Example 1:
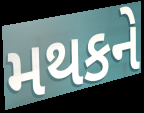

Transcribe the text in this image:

મથકને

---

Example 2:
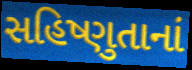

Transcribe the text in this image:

સહિષ્ણુતાનાં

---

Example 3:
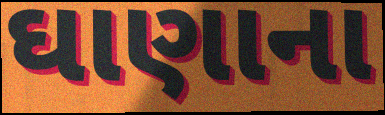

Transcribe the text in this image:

ઘાણાના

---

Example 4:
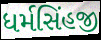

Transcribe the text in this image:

ધર્મસિંહજી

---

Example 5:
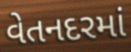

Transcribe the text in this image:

વેતનદરમાં